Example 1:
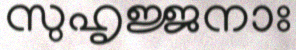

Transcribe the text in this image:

സുഹൃജ്ജനാഃ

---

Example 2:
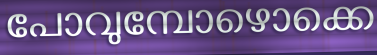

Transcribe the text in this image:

പോവുമ്പോഴൊക്കെ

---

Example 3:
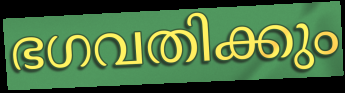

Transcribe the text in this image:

ഭഗവതിക്കും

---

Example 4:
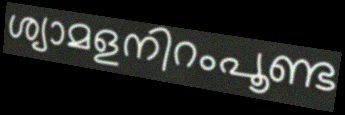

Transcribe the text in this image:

ശ്യാമളനിറംപൂണ്ട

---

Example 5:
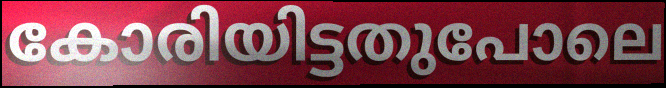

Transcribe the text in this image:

കോരിയിട്ടതുപോലെ